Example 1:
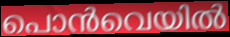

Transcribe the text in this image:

പൊൻവെയിൽ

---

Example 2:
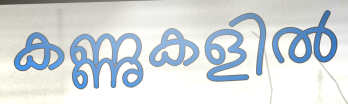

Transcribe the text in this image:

കണ്ണുകളിൽ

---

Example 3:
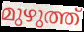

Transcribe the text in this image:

മുഴുത്ത്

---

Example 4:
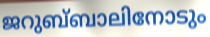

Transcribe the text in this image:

ജറുബ്‌ബാലിനോടും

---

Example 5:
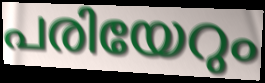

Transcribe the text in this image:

പരിയേറും